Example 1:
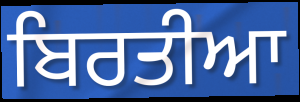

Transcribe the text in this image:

ਬਿਰਤੀਆ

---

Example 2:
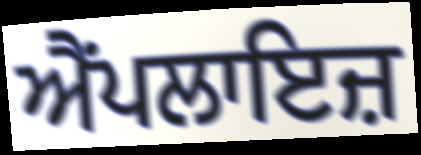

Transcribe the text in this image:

ਐਂਪਲਾਇਜ਼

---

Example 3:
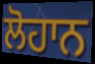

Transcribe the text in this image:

ਲੋਹਾਨ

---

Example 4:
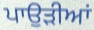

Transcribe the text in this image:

ਪਾਉੜੀਆਂ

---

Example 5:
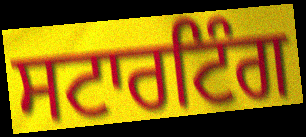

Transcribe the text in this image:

ਸਟਾਰਟਿੰਗ